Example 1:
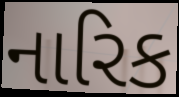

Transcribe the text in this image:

નારિક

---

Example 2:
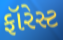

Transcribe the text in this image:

ફૉરેસ્ટ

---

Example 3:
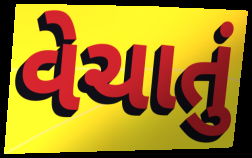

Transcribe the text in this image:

વેચાતું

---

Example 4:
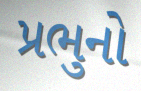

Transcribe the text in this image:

પ્રભુનો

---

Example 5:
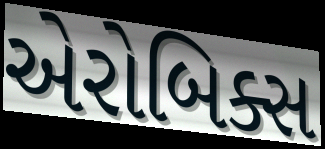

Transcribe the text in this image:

એરોબિક્સ